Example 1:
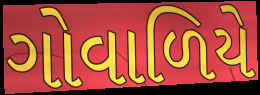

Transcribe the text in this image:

ગોવાળિયે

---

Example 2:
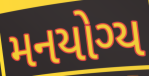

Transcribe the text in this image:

મનયોગ્ય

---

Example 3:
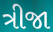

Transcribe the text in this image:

ત્રીજા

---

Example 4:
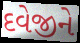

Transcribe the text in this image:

દવેજીને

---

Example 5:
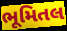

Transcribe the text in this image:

ભૂમિતલ